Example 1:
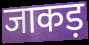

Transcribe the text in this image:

जाकड़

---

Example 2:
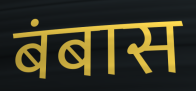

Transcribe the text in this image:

बंबास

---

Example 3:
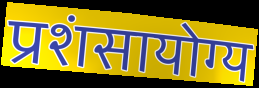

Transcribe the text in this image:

प्रशंसायोग्य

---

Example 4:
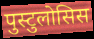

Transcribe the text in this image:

पुस्टुलोसिस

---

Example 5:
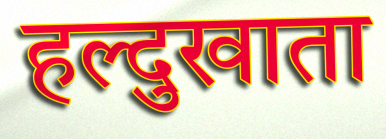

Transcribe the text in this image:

हल्दुखाता